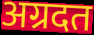
अग्रदत